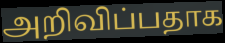
அறிவிப்பதாக